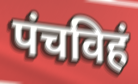
पंचविहं